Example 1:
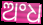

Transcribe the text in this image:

ଅଂଧ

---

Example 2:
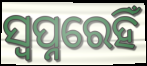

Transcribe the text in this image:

ସ୍ୱପ୍ନରେହିଁ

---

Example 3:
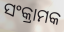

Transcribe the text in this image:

ସଂକ୍ରାମକ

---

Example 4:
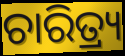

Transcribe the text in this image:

ଚାରିତ୍ର୍ୟ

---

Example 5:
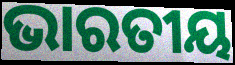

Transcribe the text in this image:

ଭାରତୀୟ